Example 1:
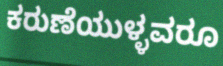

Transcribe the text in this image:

ಕರುಣೆಯುಳ್ಳವರೂ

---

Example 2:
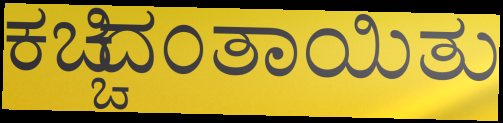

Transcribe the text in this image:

ಕಚ್ಚಿದಂತಾಯಿತು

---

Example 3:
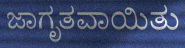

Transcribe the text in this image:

ಜಾಗೃತವಾಯಿತು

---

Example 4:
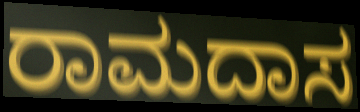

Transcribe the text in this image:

ರಾಮದಾಸ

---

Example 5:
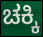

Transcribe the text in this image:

ಚಕ್ಕಿ